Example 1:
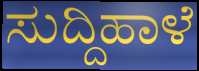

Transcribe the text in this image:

ಸುದ್ದಿಹಾಳೆ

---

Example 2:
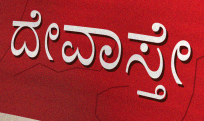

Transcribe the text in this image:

ದೇವಾಸ್ತೇ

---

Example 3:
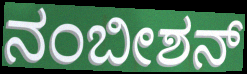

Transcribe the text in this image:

ನಂಬೀಶನ್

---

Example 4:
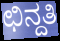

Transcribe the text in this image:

ಛಿನ್ದತಿ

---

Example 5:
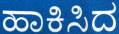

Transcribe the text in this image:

ಹಾಕಿಸಿದ